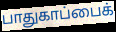
பாதுகாப்பைக்